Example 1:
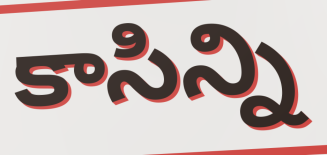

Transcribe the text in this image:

కాసిన్ని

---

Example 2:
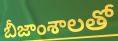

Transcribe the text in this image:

బీజాంశాలతో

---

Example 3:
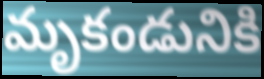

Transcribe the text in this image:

మృకండునికి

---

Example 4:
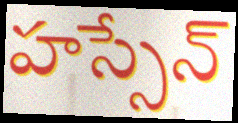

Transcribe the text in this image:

హస్సేన్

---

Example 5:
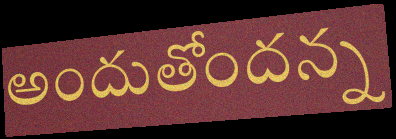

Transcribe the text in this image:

అందుతోందన్న